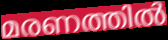
മരണത്തിൽ